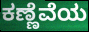
ಕಣ್ಣೆವೆಯ